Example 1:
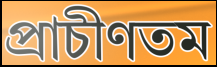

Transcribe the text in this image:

প্রাচীণতম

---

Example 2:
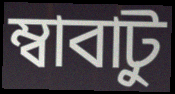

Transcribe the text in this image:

ম্বাবাটু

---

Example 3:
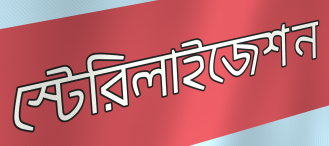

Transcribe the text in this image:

স্টেরিলাইজেশন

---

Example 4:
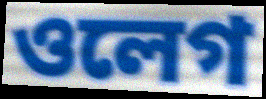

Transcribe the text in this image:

ওলেগ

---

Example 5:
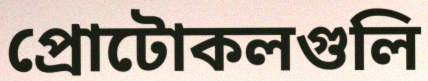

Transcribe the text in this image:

প্রোটোকলগুলি